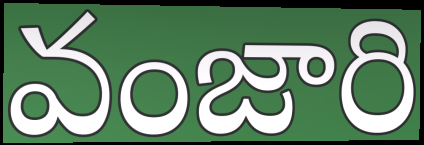
వంజారి